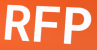
RFP